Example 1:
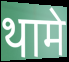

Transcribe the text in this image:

थामे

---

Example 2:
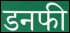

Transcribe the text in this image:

डनफी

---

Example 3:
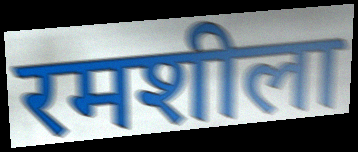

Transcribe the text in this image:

रमशीला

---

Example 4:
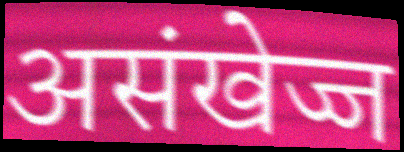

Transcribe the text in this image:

असंखेज्ज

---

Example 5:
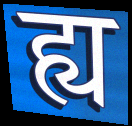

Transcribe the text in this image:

ह्य